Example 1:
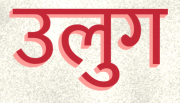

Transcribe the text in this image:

उलुग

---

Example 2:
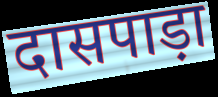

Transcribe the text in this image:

दासपाड़ा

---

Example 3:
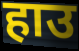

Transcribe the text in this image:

हाउ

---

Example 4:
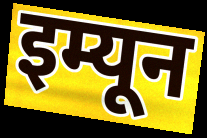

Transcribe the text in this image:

इम्यून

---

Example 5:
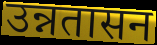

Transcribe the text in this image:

उन्नतासन